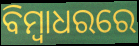
ବିମ୍ୱାଧରରେ